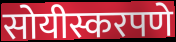
सोयीस्करपणे